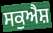
ਸਕੁਐਸ਼